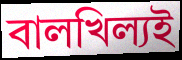
বালখিল্যই